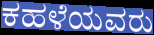
ಕಹಳೆಯವರು